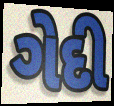
ગેદી